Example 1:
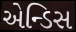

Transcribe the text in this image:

એન્ડિસ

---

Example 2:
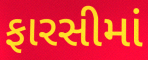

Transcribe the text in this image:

ફારસીમાં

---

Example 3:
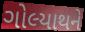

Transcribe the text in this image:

ગોલ્યાથને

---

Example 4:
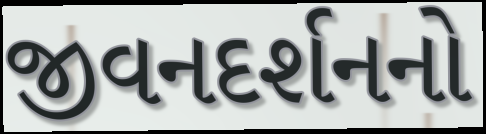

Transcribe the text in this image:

જીવનદર્શનનો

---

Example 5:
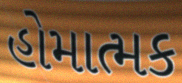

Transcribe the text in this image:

હોમાત્મક